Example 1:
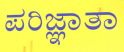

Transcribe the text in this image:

ಪರಿಜ್ಞಾತಾ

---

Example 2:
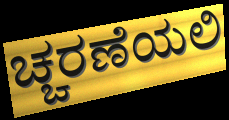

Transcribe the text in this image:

ಚ್ಚರಣೆಯಲಿ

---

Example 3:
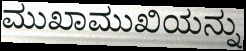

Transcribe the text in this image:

ಮುಖಾಮುಖಿಯನ್ನು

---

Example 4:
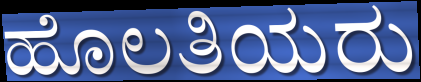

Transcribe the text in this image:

ಹೊಲತಿಯರು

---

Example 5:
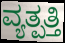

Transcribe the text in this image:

ವ್ಯತ್ಪತ್ತಿ